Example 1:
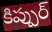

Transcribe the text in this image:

కిప్పుర్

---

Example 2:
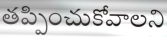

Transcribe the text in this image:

తప్పించుకోవాలని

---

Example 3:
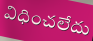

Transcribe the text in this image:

విధించలేదు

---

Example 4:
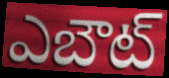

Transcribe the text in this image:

ఎబౌట్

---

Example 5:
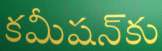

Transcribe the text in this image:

కమీషన్‌కు